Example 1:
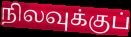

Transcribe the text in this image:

நிலவுக்குப்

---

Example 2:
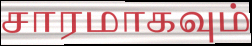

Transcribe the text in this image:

சாரமாகவும்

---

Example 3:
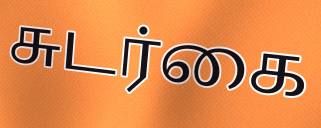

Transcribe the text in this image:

சுடர்கை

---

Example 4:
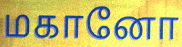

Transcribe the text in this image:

மகானோ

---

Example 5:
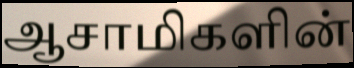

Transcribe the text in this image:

ஆசாமிகளின்